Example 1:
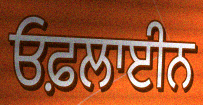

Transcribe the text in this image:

ਓਫ਼ਲਾਈਨ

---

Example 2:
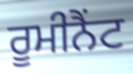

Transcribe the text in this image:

ਰੂਮੀਨੈਂਟ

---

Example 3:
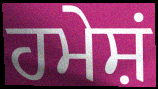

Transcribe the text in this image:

ਹਮੇਸ਼ਂ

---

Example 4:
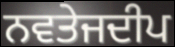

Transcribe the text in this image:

ਨਵਤੇਜਦੀਪ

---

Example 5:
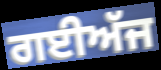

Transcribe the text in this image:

ਗਈਅੱਜ